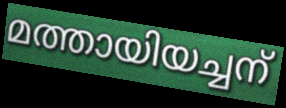
മത്തായിയച്ചന്